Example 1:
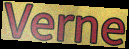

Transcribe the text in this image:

Verne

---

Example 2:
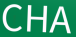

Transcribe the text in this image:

CHA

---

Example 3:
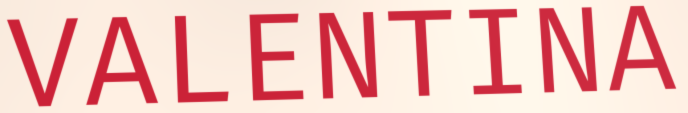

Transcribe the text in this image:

VALENTINA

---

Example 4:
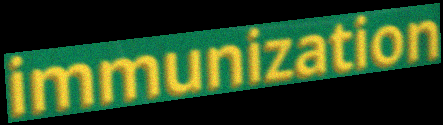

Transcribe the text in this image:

immunization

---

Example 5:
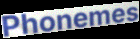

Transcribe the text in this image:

Phonemes